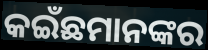
କଇଁଛମାନଙ୍କର